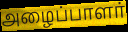
அழைப்பாளர்